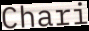
Chari